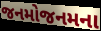
જનમોજનમના